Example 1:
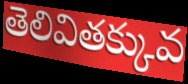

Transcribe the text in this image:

తెలివితక్కువ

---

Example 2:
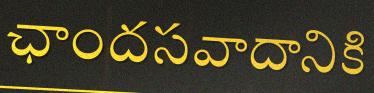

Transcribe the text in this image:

ఛాందసవాదానికి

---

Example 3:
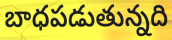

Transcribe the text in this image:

బాధపడుతున్నది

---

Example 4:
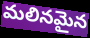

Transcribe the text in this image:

మలినమైన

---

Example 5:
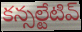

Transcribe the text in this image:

కన్సల్టేటివ్